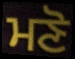
ਮਣੋ